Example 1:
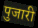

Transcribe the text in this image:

पुजारी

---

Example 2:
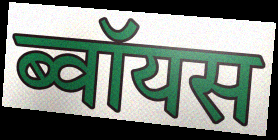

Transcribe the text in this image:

ब्वॉयस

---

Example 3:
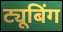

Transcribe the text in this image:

ट्यूबिंग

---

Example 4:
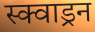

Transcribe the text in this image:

स्क्वाड्रन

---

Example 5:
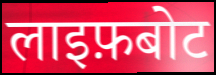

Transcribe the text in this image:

लाइफ़बोट